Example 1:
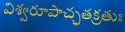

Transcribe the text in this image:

విశ్వరూపాచ్ఛతక్రతుః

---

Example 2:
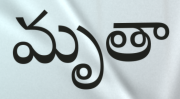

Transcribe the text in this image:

మృతా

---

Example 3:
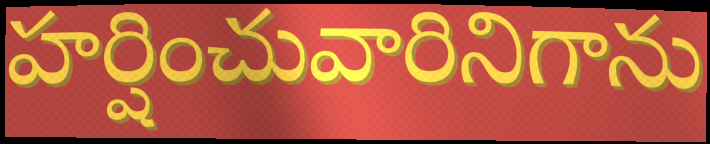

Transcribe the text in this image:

హర్షించువారినిగాను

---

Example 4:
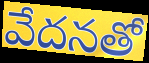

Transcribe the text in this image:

వేదనతో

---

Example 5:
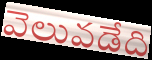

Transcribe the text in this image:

వెలువడేది